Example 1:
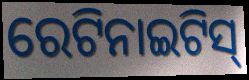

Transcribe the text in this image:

ରେଟିନାଇଟିସ୍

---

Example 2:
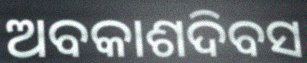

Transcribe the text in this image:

ଅବକାଶଦିବସ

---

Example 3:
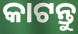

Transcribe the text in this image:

କାଟନ୍ତୁ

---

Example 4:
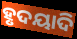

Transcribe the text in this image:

ହୃଦୟାଦି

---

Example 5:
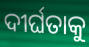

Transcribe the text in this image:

ଦୀର୍ଘତାକୁ